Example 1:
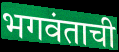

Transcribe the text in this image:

भगवंताची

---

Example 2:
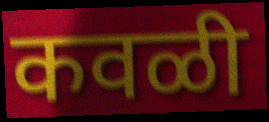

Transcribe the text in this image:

कवळी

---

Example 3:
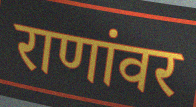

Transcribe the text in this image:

राणांवर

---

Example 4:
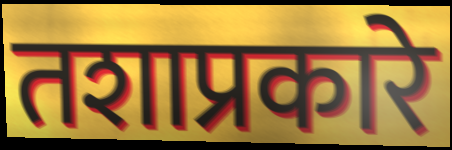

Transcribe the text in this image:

तशाप्रकारे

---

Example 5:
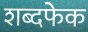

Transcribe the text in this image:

शब्दफेक